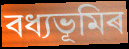
বধ্যভূমিৰ